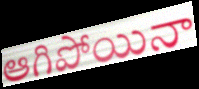
ఆగిపోయినా